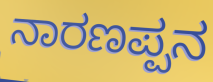
ನಾರಣಪ್ಪನ